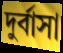
দুর্বাসা